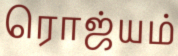
ரொஜ்யம்